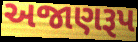
અજાણરૂપ